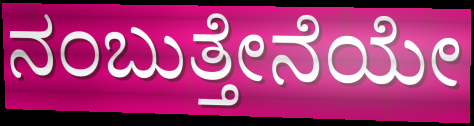
ನಂಬುತ್ತೇನೆಯೇ